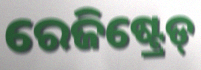
ରେଜିଷ୍ଟ୍ରେଡ୍